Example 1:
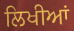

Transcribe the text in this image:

ਲਿਖੀਆਂ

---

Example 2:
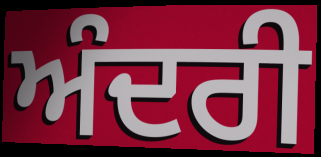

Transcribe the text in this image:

ਅੰਦਰੀ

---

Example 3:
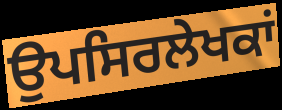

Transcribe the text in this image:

ਉਪਸਿਰਲੇਖਕਾਂ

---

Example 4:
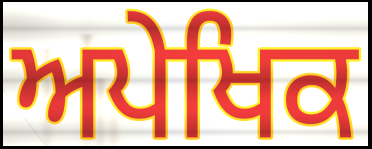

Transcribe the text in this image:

ਅਪੇਖਿਕ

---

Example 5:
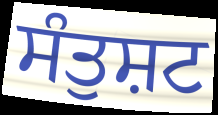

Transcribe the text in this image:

ਸੰਤੁਸ਼ਟ